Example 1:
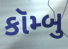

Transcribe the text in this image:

કૉમ્બુ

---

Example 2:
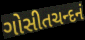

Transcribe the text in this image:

ગોસીતચન્દનં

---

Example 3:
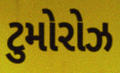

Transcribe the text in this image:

ટુમોરોઝ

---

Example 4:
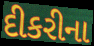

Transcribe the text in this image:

દીકરીના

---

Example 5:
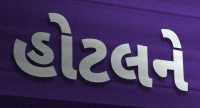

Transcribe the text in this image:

હોટલને